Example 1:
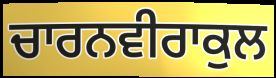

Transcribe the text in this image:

ਚਾਰਨਵੀਰਾਕੁਲ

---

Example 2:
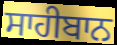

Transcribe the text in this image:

ਸਾਹੀਬਾਨ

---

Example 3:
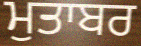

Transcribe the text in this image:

ਮੁਤਾਬਰ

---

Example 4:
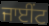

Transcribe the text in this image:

ਜਾਈਂਟ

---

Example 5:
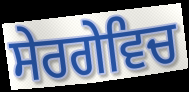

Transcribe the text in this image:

ਸੇਰਗੇਵਿਚ